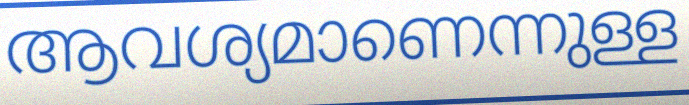
ആവശ്യമാണെന്നുള്ള